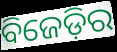
ବିଜେଡ଼ିର